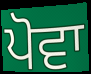
ਪੋਵਾ